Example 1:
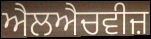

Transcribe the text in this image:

ਐਲਐਚਵੀਜ਼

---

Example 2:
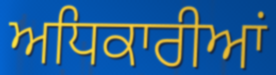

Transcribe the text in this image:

ਅਧਿਕਾਰੀਆਂ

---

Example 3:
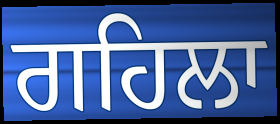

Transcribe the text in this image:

ਗਹਿਲਾ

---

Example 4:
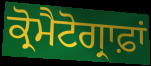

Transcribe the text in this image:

ਕ੍ਰੋਮੈਟੋਗ੍ਰਾਫ਼ਾਂ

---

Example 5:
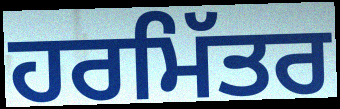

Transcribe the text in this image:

ਹਰਮਿੱਤਰ